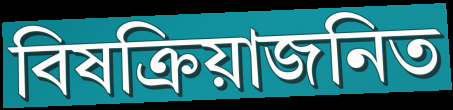
বিষক্রিয়াজনিত